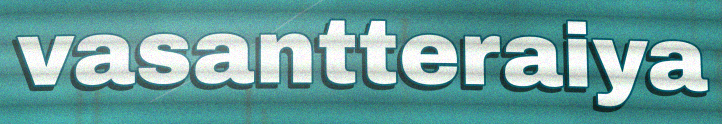
vasantteraiya